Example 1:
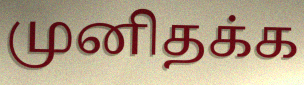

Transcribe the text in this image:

முனிதக்க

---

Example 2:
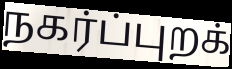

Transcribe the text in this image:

நகர்ப்புறக்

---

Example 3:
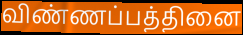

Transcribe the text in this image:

விண்ணப்பத்தினை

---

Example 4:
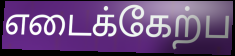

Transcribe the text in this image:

எடைக்கேற்ப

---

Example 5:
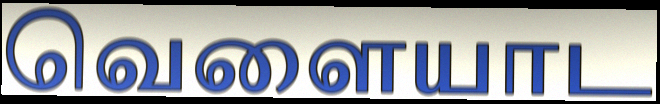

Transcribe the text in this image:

வெளையாட